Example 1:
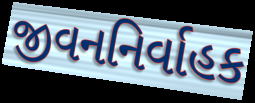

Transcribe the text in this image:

જીવનનિર્વાહક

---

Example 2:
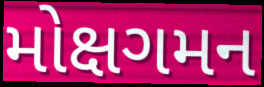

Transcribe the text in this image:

મોક્ષગમન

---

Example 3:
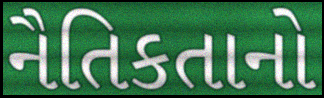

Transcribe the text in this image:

નૈતિકતાનો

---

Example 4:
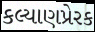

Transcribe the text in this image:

કલ્યાણપ્રેરક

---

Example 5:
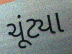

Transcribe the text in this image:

ચૂંટ્યા